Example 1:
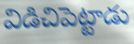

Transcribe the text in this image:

విడిచిపెట్టాడు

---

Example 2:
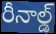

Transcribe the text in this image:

రీనాల్డ్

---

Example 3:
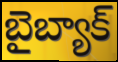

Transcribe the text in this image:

బైబ్యాక్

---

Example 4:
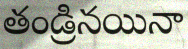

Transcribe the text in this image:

తండ్రినయినా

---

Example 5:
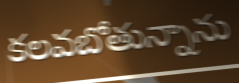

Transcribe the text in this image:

కలవబోతున్నాను